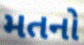
મતનો